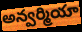
అన్వర్మియా